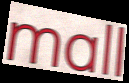
mall